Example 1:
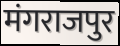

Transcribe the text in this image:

मंगराजपुर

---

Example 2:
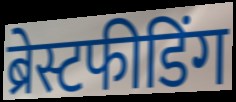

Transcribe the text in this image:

ब्रेस्टफीडिंग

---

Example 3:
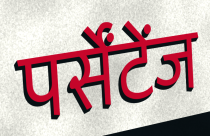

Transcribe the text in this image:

पर्सेंटेंज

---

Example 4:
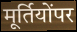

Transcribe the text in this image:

मूर्तियोंपर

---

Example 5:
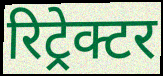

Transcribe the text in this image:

रिट्रेक्टर